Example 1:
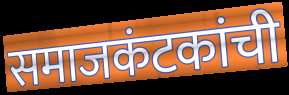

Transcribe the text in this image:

समाजकंटकांची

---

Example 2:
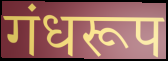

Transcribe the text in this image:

गंधरूप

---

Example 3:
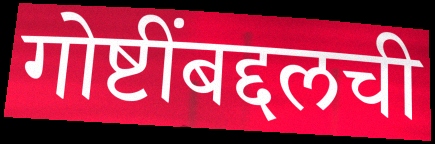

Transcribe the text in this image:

गोष्टींबद्दलची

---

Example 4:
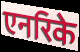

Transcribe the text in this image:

एनरिके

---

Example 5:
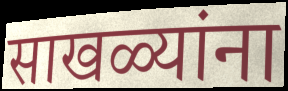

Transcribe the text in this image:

साखळ्यांना